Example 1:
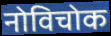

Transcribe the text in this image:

नोविचोक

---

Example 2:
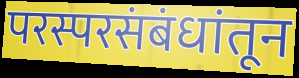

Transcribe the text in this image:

परस्परसंबंधांतून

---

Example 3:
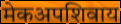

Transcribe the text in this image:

मेकअपशिवाय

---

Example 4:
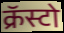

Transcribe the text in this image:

क्रॅस्टो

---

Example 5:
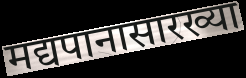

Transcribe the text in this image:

मद्यपानासारख्या